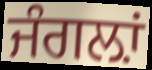
ਜੰਗਲ਼ਾਂ